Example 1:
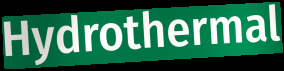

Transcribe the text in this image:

Hydrothermal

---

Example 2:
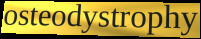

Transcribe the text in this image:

osteodystrophy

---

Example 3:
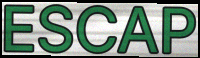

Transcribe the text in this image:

ESCAP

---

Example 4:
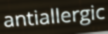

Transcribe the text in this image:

antiallergic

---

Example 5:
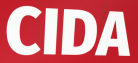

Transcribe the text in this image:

CIDA